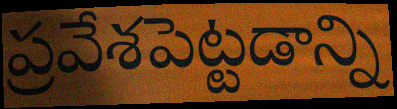
ప్రవేశపెట్టడాన్ని